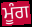
ਮੂੰਗ